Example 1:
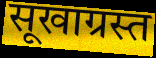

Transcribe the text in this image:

सूखाग्रस्‍त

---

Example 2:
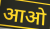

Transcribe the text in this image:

आओ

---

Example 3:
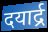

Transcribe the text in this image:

दयार्द्र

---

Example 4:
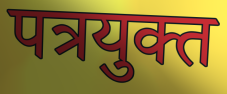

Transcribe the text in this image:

पत्रयुक्त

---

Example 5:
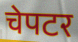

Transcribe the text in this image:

चेपटर